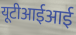
यूटीआईआई